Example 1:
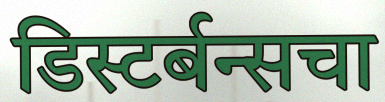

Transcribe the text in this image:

डिस्टर्बन्सचा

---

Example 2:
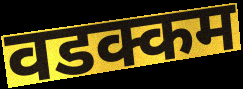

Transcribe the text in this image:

वडक्कम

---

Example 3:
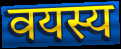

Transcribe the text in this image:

वयस्य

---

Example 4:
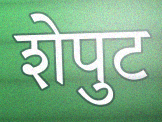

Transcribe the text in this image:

शेपुट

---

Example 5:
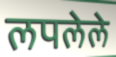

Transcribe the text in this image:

लपलेले